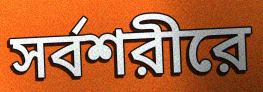
সর্বশরীরে